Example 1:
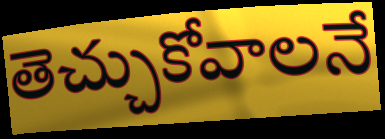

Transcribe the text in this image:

తెచ్చుకోవాలనే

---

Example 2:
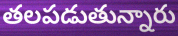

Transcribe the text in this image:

తలపడుతున్నారు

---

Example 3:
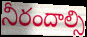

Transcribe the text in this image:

నీరందాల్సి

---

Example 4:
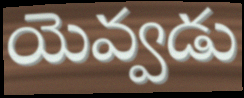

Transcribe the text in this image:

యెవ్వడు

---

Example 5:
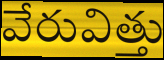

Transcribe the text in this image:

వేరువిత్తు